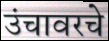
उंचावरचे